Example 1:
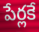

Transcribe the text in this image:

పేర్లకే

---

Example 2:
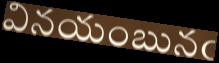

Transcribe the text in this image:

వినయంబునఁ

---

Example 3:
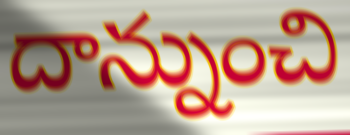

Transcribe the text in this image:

దాన్నుంచి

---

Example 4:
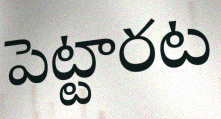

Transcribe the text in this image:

పెట్టారట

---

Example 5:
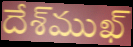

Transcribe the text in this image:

దేశ్‌ముఖ్